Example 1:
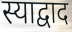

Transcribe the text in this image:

स्याद्वाद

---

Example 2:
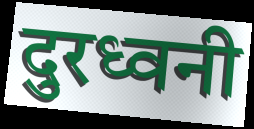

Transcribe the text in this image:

दुरध्वनी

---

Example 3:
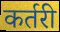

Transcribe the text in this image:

कर्तरी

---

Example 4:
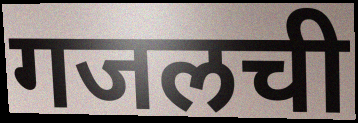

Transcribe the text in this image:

गजलची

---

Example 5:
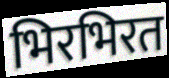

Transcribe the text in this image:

भिरभिरत